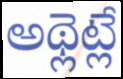
అథ్లెట్లే